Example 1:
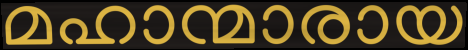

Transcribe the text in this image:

മഹാന്മാരായ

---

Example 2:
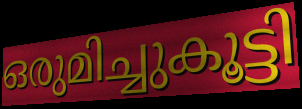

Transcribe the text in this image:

ഒരുമിച്ചുകൂട്ടി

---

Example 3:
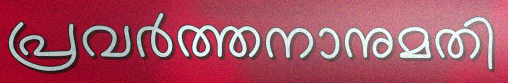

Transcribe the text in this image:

പ്രവർത്തനാനുമതി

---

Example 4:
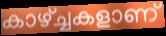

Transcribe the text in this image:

കാഴ്ച്ചകളാണ്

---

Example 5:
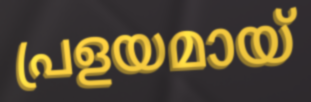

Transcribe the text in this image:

പ്രളയമായ്